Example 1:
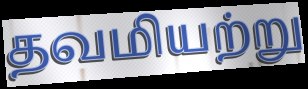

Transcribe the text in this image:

தவமியற்று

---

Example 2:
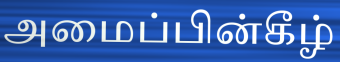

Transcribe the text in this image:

அமைப்பின்கீழ்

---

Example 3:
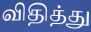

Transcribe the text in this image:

விதித்து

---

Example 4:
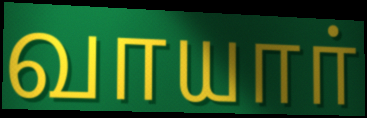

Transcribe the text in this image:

வாயார்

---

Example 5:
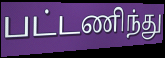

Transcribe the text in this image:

பட்டணிந்து